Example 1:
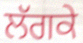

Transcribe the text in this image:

ਲੱਗਕੇ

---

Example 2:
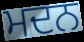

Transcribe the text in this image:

ਮਦਨ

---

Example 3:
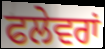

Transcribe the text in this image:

ਫਲੇਵਰਾਂ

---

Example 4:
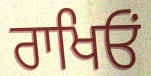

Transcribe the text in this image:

ਰਾਖਿਓਂ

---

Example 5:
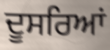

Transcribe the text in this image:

ਦੂਸਰਿਆਂ